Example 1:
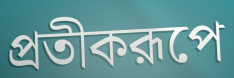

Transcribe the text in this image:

প্রতীকরূপে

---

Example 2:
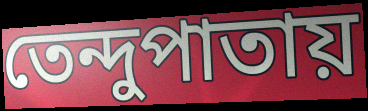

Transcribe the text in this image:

তেন্দুপাতায়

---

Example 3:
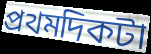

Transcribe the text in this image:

প্রথমদিকটা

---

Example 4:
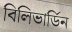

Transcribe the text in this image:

বিলিভার্ডিন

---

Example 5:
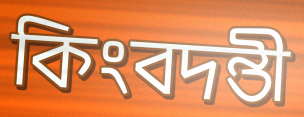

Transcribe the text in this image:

কিংবদন্তী